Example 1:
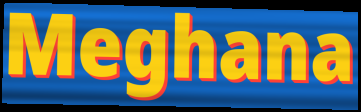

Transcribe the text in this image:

Meghana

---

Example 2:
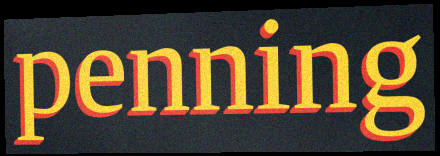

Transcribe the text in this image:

penning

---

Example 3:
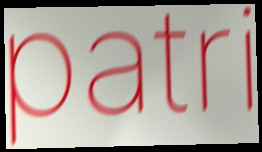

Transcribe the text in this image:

patri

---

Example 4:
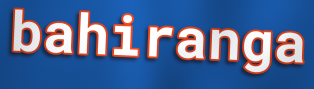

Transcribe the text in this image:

bahiranga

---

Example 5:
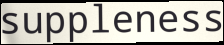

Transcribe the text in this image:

suppleness